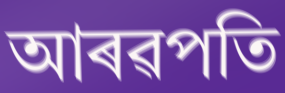
আৰৱপতি